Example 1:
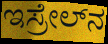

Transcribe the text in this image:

ಇಸ್ರೇಲ್‍ನ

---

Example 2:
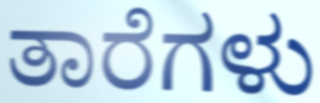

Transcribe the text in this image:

ತಾರೆಗಳು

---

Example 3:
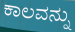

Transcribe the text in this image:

ಕಾಲವನ್ನು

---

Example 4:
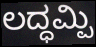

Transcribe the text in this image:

ಲದ್ಧಮ್ಪಿ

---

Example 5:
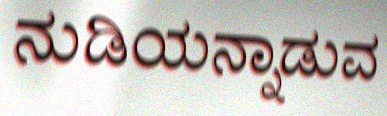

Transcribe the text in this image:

ನುಡಿಯನ್ನಾಡುವ